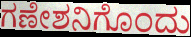
ಗಣೇಶನಿಗೊಂದು